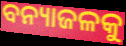
ବନ୍ୟାଜଳକୁ